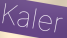
Kaler